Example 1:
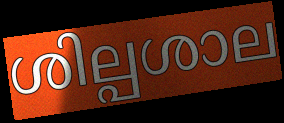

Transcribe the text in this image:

ശില്പശാല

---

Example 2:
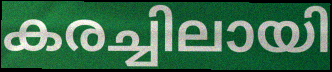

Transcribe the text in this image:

കരച്ചിലായി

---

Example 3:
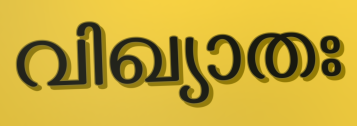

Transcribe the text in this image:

വിഖ്യാതഃ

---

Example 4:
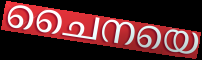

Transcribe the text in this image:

ചൈനയെ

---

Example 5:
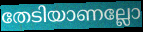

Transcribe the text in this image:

തേടിയാണല്ലോ